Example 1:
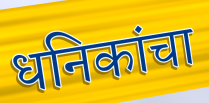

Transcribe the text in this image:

धनिकांचा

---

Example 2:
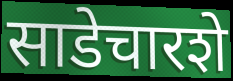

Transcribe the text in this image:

साडेचारशे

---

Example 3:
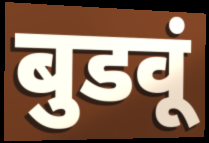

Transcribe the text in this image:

बुडवूं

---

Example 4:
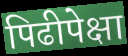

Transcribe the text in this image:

पिढीपेक्षा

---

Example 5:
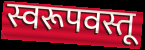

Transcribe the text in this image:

स्वरूपवस्तू